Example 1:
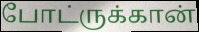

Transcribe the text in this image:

போட்ருக்கான்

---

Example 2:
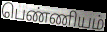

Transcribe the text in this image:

பெண்ணியம்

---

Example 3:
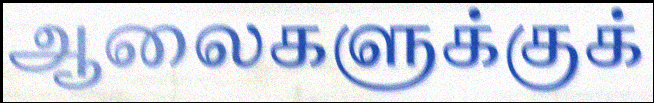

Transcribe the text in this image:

ஆலைகளுக்குக்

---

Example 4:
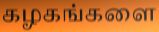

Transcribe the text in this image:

கழகங்களை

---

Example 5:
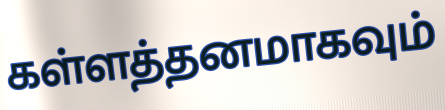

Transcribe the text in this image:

கள்ளத்தனமாகவும்